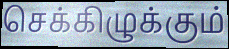
செக்கிழுக்கும்